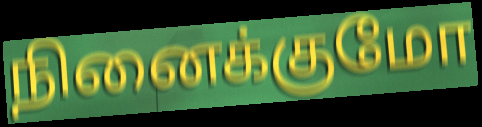
நினைக்குமோ